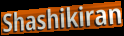
Shashikiran